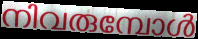
നിവരുമ്പോൾ